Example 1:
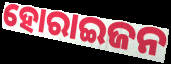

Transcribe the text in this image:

ହୋରାଇଜନ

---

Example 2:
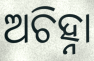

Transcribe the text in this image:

ଅଚିହ୍ନା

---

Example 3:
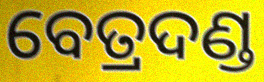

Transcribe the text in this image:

ବେତ୍ରଦଣ୍ଡ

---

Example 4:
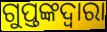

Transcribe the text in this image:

ଗୁପ୍ତଙ୍କଦ୍ୱାରା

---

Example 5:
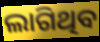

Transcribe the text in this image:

ଲାଗିଥିବ